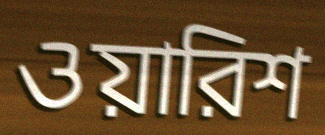
ওয়ারিশ